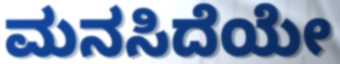
ಮನಸಿದೆಯೇ